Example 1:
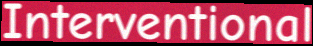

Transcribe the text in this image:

Interventional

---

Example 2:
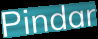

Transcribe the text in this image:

Pindar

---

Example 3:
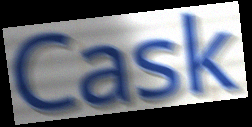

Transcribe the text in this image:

Cask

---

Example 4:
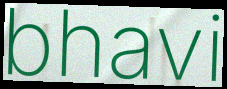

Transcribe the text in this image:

bhavi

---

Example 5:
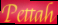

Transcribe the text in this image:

Pettah